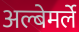
अल्बेमर्ले